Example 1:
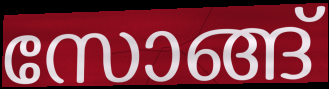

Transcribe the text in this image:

സോങ്ങ്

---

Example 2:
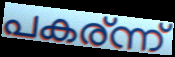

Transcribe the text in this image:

പകര്ന്ന്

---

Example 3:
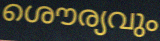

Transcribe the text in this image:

ശൌര്യവും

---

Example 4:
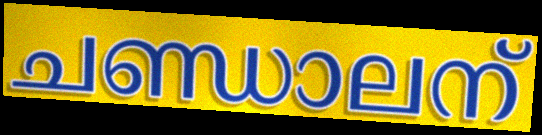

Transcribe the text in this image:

ചണ്ഡാലന്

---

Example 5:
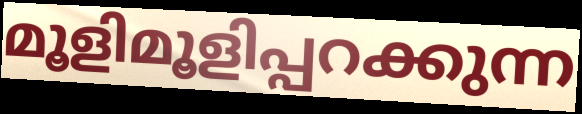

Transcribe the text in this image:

മൂളിമൂളിപ്പറക്കുന്ന